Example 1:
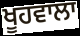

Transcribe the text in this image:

ਖੂਹਵਾਲਾ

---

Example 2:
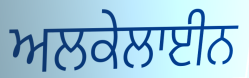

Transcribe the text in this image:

ਅਲਕੇਲਾਈਨ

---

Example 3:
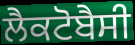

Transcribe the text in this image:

ਲੈਕਟੋਬੈਸੀ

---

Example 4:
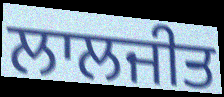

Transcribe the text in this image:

ਲਾਲਜੀਤ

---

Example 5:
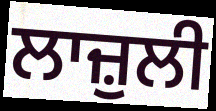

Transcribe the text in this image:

ਲਾਜ਼ੁਲੀ